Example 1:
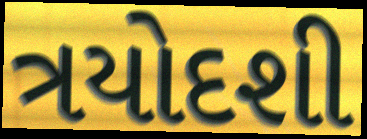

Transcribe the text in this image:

ત્રયોદશી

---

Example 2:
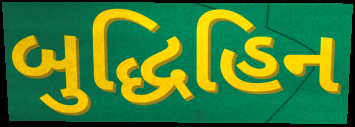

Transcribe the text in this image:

બુદ્ધિહિન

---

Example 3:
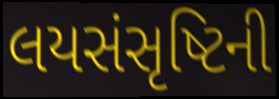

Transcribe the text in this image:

લયસંસૃષ્ટિની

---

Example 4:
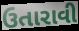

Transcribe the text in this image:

ઉતારાવી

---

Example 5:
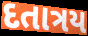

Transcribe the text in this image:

દતાત્રય